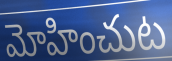
మోహించుట